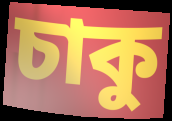
চাকু